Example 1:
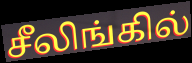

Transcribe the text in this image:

சீலிங்கில்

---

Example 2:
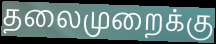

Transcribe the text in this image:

தலைமுறைக்கு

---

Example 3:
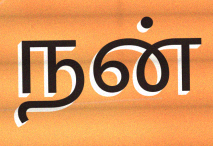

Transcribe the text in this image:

நன்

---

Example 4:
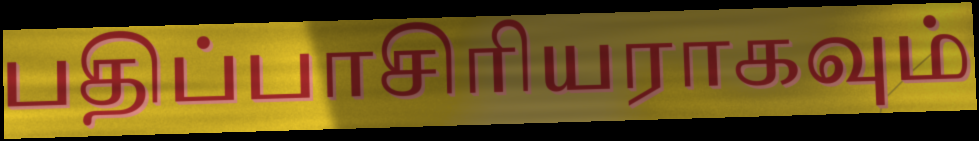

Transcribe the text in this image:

பதிப்பாசிரியராகவும்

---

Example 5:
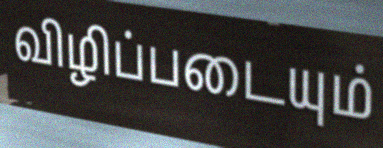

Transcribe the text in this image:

விழிப்படையும்